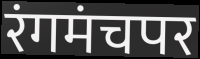
रंगमंचपर